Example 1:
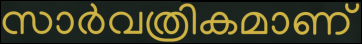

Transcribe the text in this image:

സാർവത്രികമാണ്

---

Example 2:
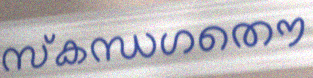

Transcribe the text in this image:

സ്കന്ധഗതൌ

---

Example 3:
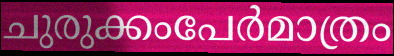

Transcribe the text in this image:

ചുരുക്കംപേർമാത്രം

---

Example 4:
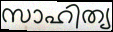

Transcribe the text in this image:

സാഹിത്യ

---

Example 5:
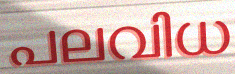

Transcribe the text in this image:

പലവിധ